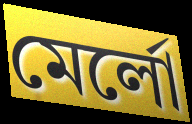
মের্লো